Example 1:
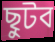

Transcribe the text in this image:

ছুটব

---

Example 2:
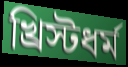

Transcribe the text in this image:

খ্রিস্টধর্ম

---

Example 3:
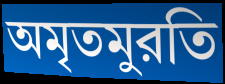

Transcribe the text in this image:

অমৃতমুরতি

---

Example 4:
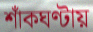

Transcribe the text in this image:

শাঁকঘণ্টায়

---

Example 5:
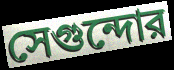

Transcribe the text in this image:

সেগুন্দোর